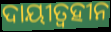
ଦାୟୀତ୍ୱହୀନ